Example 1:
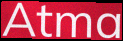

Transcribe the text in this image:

Atma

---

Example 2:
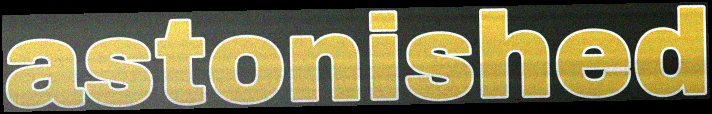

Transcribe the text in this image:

astonished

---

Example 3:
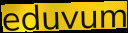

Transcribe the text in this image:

eduvum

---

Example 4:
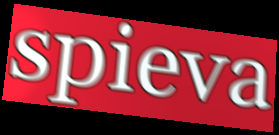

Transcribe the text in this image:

spieva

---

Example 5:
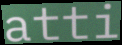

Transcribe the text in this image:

atti